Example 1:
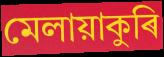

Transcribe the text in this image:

মেলায়াকুৰি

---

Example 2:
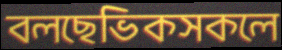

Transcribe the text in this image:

বলছেভিকসকলে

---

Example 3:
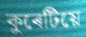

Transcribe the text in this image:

কুৰেটিয়ে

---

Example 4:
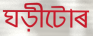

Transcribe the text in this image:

ঘড়ীটোৰ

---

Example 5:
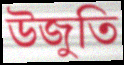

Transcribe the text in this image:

উজুতি